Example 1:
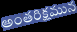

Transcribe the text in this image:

అంతరిక్షమున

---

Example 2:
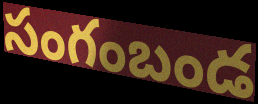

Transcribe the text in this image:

సంగంబండ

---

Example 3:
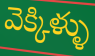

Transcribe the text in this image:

వెక్కిళ్ళు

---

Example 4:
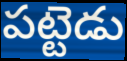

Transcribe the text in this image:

పట్టెడు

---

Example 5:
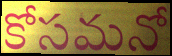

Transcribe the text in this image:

కోసమనో